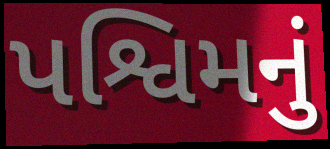
પશ્વિમનું